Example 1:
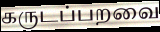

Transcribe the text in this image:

கருடப்பறவை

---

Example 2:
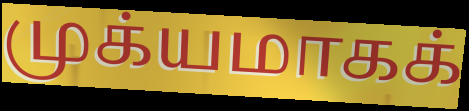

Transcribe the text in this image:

முக்யமாகக்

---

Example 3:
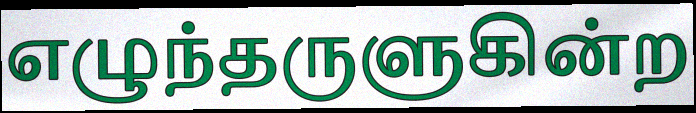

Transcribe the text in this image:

எழுந்தருளுகின்ற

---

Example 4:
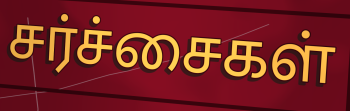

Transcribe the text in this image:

சர்ச்சைகள்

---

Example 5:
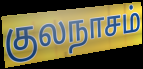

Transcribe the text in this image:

குலநாசம்